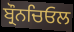
ਬ੍ਰੌਨਚਿਓਲ